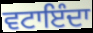
ਵਟਾਇੰਦਾ